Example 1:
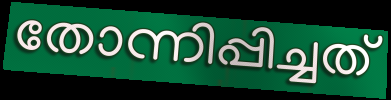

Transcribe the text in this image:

തോന്നിപ്പിച്ചത്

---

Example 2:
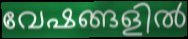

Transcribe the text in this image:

വേഷങ്ങളിൽ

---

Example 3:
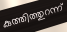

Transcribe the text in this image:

കുത്തിത്തുറന്ന്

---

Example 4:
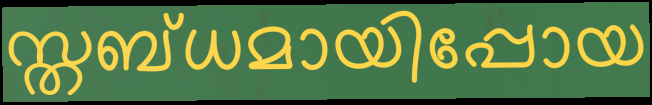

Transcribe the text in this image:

സ്തബ്ധമായിപ്പോയ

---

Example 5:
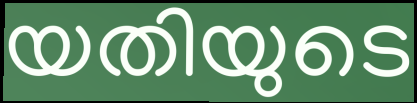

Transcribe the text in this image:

യതിയുടെ